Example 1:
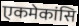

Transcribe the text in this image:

एकमेकांसि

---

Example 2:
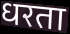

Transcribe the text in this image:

धरता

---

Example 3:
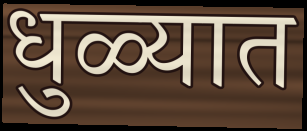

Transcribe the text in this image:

धुळ्यात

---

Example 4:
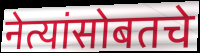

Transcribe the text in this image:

नेत्यांसोबतचे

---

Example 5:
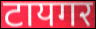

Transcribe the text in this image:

टायगर